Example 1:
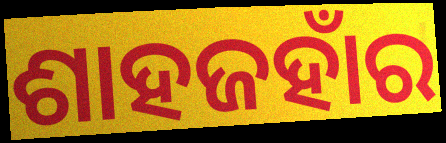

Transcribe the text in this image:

ଶାହଜହାଁର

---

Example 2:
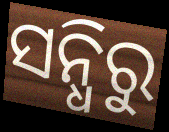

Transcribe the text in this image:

ସନ୍ଧିରୁ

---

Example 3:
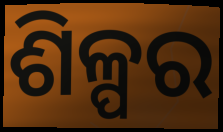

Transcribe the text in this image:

ଶିଳ୍ପର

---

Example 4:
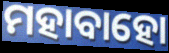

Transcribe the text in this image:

ମହାବାହୋ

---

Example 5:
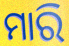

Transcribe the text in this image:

ମାରି